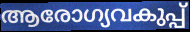
ആരോഗ്യവകുപ്പ്